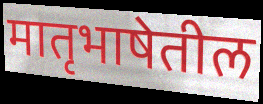
मातृभाषेतील